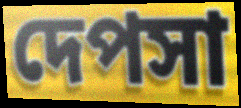
দেপসা